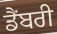
ਡੈਂਬਰੀ